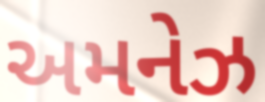
અમનેઝ